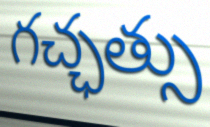
గచ్ఛత్సు